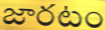
జారటం